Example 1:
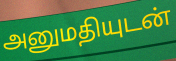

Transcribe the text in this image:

அனுமதியுடன்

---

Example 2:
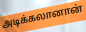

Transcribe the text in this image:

அடிக்கலானான்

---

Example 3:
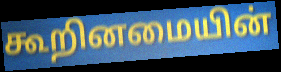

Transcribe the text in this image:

கூறினமையின்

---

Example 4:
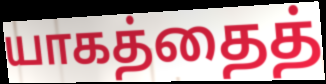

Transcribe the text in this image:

யாகத்தைத்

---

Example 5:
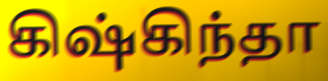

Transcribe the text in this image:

கிஷ்கிந்தா